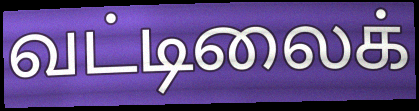
வட்டிலைக்